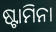
ଷ୍ଟାମିନା